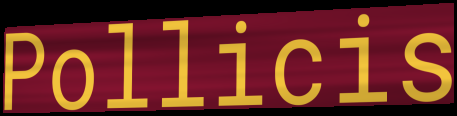
Pollicis